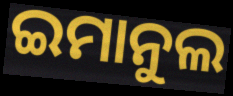
ଇମାନୁଲ